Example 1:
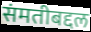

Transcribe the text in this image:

संमतीबद्दल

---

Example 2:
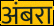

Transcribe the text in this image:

अंबरा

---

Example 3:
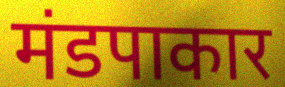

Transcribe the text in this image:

मंडपाकार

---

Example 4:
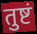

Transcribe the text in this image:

तुष्टं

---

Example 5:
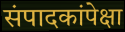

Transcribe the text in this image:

संपादकांपेक्षा